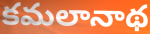
కమలానాథ